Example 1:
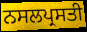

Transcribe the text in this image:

ਨਸਲਪ੍ਰਸਤੀ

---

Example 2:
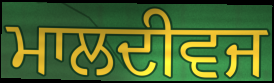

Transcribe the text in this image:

ਮਾਲਦੀਵਜ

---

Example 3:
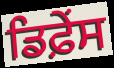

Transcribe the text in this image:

ਡਿਫ਼ੇੰਸ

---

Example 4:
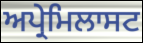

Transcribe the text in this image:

ਅਪ੍ਰੇਮਿਲਾਸਟ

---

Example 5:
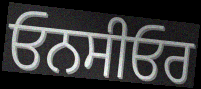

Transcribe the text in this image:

ਓਨਸੀਓਰ